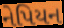
નેપિયન